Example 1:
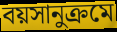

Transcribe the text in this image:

বয়সানুক্রমে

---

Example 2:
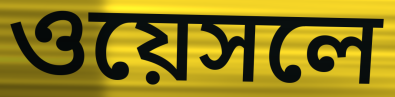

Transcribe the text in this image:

ওয়েসলে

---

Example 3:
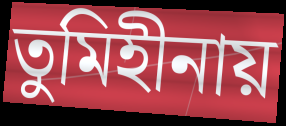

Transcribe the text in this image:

তুমিহীনায়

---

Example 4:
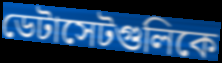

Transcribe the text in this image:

ডেটাসেটগুলিকে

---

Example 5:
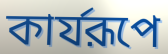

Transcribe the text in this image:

কার্যরূপে